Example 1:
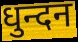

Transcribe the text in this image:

धुन्दन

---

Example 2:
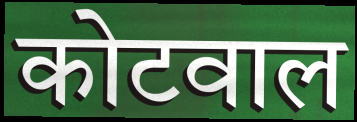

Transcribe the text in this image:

कोटवाल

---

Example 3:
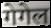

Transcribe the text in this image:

गेगेल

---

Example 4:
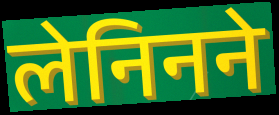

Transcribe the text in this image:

लेनिनने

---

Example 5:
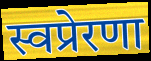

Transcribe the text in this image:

स्वप्रेरणा